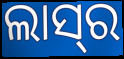
ଲାସ୍‍ର